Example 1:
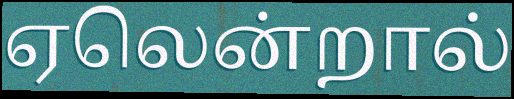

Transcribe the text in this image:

ஏலென்றால்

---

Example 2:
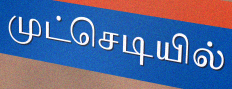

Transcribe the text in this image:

முட்செடியில்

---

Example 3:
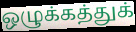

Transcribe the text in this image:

ஒழுக்கத்துக்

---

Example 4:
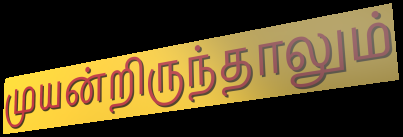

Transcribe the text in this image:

முயன்றிருந்தாலும்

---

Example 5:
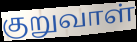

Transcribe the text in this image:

குறுவாள்